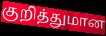
குறித்துமான